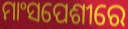
ମାଂସପେଶୀରେ